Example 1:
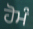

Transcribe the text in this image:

ਹੋਮੰ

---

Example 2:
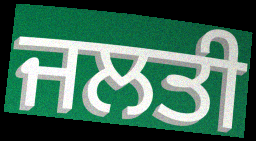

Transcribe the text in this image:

ਜਲਤੀ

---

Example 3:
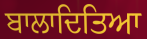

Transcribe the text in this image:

ਬਾਲਾਦਿਤਿਆ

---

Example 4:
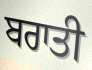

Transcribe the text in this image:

ਬਰਾਤੀ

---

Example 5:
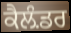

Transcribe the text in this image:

ਕੈਲ਼ੰਡਰ